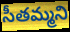
సీతమ్మని